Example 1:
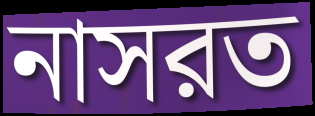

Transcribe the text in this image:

নাসরত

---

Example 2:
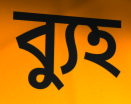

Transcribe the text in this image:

ব্যুহ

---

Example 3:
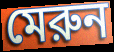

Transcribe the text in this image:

মেরুন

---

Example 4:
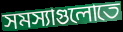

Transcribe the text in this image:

সমস্যাগুলোতে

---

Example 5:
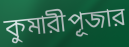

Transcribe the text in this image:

কুমারীপূজার